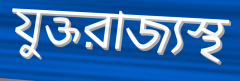
যুক্তরাজ্যস্থ